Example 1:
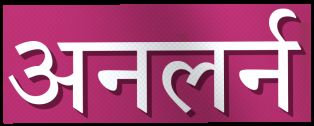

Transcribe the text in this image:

अनलर्न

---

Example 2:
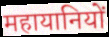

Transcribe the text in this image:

महायानियों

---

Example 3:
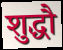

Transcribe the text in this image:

शुद्धौ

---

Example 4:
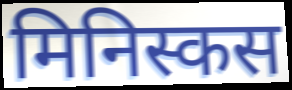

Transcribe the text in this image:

मिनिस्कस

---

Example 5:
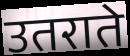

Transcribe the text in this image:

उतराते